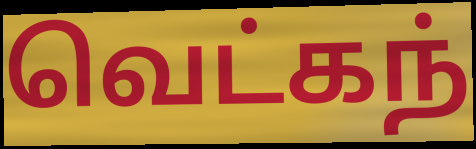
வெட்கந்